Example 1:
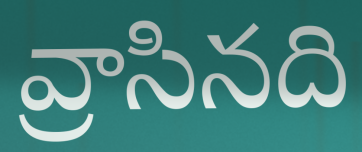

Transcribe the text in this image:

వ్రాసినది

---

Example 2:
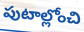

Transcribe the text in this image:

పుటాల్లోంచి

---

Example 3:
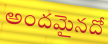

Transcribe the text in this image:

అందమైనదో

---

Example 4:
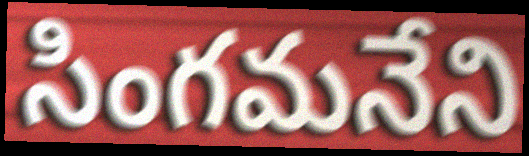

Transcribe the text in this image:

సింగమనేని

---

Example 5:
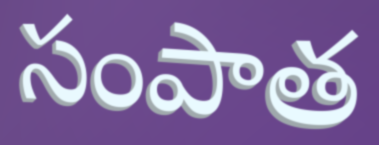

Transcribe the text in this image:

సంపాత